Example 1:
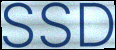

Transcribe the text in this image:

SSD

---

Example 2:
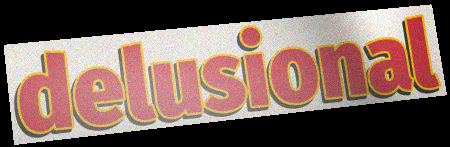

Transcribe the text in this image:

delusional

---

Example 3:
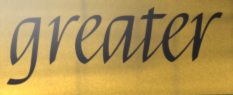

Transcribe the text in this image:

greater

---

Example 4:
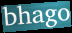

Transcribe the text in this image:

bhago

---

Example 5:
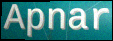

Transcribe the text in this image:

Apnar